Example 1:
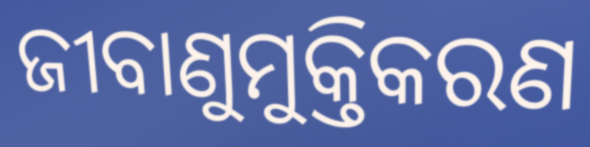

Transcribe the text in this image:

ଜୀବାଣୁମୁକ୍ତିକରଣ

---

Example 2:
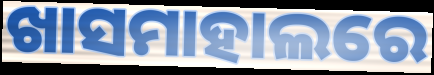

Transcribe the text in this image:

ଖାସମାହାଲରେ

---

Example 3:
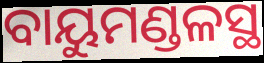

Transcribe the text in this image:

ବାୟୁମଣ୍ଡଳସ୍ଥ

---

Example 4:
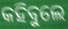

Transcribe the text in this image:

କହିବୁଲେ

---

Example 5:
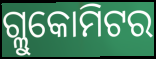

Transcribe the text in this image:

ଗ୍ଲୁକୋମିଟର